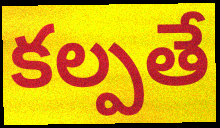
కల్పతే